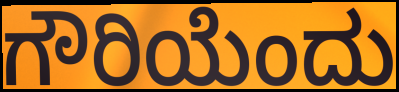
ಗೌರಿಯೆಂದು